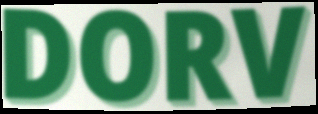
DORV